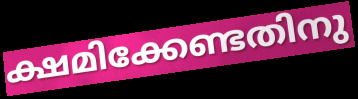
ക്ഷമിക്കേണ്ടതിനു